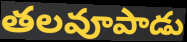
తలవూపాడు